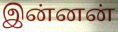
இன்னன்